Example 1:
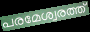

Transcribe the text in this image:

പരമേശ്വരത്ത്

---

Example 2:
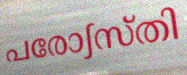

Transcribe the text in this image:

പരോഽസ്തി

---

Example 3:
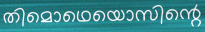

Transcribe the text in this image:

തിമൊഥെയൊസിന്റെ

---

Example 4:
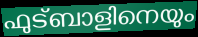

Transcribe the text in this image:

ഫുട്ബാളിനെയും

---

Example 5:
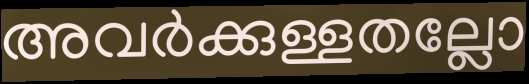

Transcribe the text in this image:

അവർക്കുള്ളതല്ലോ